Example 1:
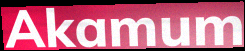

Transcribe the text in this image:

Akamum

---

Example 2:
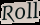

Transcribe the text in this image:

Roll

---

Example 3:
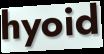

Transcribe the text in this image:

hyoid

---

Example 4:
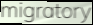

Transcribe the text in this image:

migratory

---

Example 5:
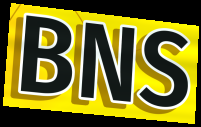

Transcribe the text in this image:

BNS